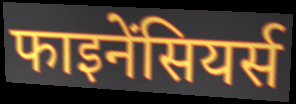
फाइनेंसियर्स